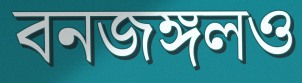
বনজঙ্গলও